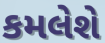
કમલેશે